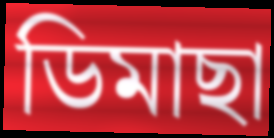
ডিমাছা